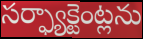
సర్ఫ్యాక్టెంట్లను